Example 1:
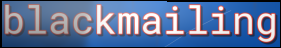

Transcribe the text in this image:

blackmailing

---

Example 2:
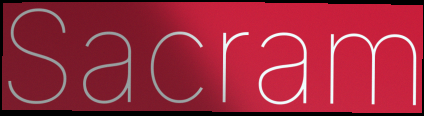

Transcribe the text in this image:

Sacram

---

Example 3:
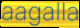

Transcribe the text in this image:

aagalla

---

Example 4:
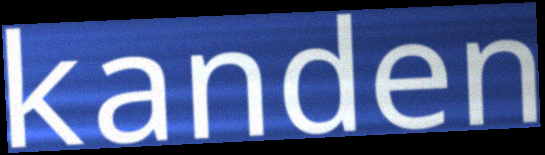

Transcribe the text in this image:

kanden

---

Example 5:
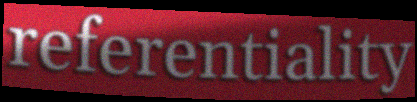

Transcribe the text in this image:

referentiality